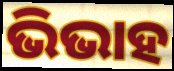
ଭିଭାହ